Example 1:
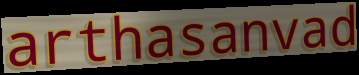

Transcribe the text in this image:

arthasanvad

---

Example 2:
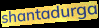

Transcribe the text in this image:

shantadurga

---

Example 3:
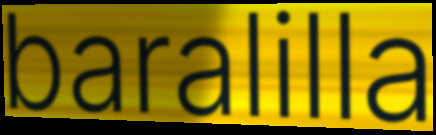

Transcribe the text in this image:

baralilla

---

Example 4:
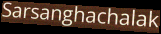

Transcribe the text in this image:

Sarsanghachalak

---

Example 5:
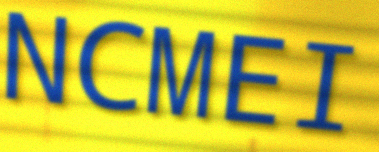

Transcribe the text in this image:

NCMEI